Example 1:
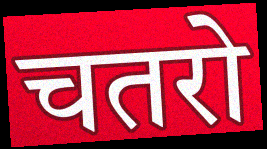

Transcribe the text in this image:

चतरो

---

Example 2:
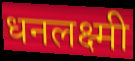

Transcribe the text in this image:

धनलक्ष्मी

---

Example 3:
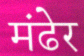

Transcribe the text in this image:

मंढेर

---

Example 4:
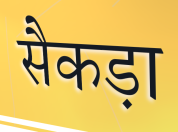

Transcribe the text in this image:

सैकड़ा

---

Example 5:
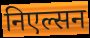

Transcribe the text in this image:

निएल्सन